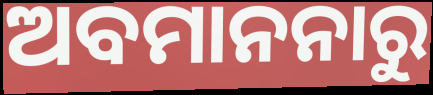
ଅବମାନନାରୁ